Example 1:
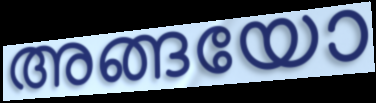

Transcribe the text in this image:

അങ്ങയോ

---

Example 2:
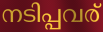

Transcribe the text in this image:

നടിപ്പവര്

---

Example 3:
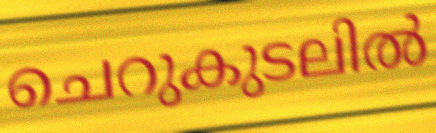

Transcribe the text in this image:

ചെറുകുടലിൽ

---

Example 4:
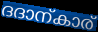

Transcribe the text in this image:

ദദാന്കാര്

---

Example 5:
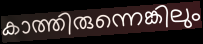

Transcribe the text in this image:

കാത്തിരുന്നെങ്കിലും